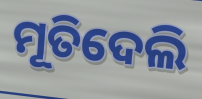
ମୂତିଦେଲି